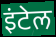
इंटेल